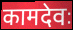
कामदेवः